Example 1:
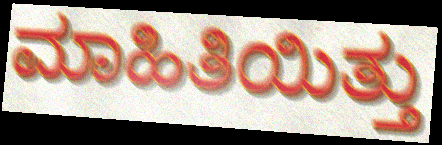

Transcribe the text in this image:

ಮಾಹಿತಿಯಿತ್ತು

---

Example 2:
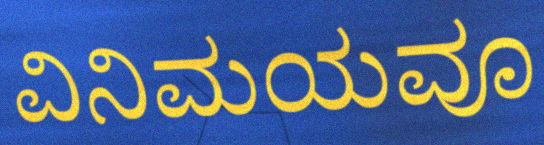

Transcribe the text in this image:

ವಿನಿಮಯವೂ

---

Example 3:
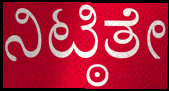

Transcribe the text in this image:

ನಿಟ್ಠಿತೇ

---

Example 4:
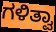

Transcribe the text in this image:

ಗಳಿತ್ವಾ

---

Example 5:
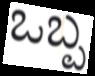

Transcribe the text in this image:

ಒಬ್ಪ